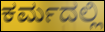
ಕರ್ಮದಲ್ಲಿ